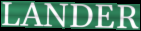
LANDER